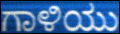
ಗಾಳಿಯು